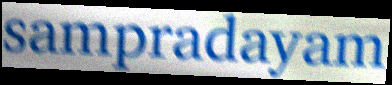
sampradayam